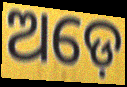
ଅଡ଼େ